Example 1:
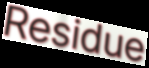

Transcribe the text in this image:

Residue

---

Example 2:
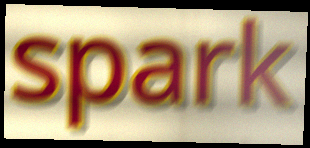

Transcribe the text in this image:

spark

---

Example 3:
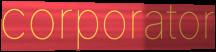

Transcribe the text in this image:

corporator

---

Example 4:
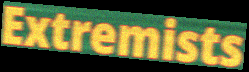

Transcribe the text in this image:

Extremists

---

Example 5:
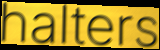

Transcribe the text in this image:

halters